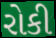
રોકી